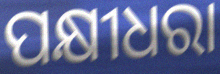
ପକ୍ଷୀଧରା